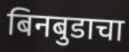
बिनबुडाचा